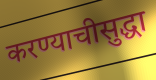
करण्याचीसुद्धा